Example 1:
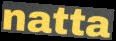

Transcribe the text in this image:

natta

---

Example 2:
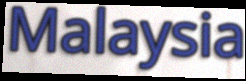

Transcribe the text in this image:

Malaysia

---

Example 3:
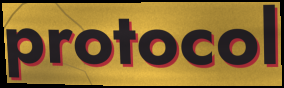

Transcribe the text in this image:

protocol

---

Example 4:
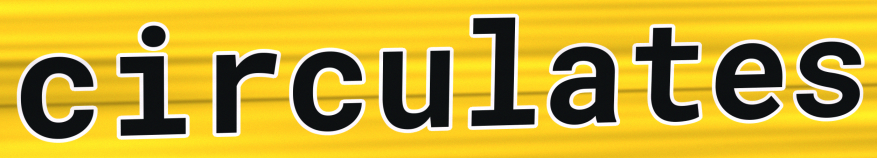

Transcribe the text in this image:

circulates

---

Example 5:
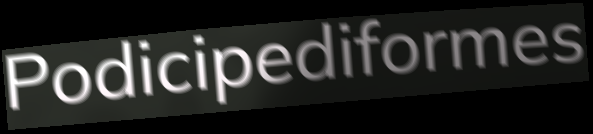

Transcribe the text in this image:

Podicipediformes